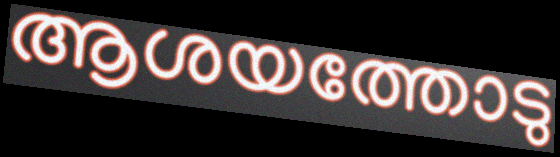
ആശയത്തോടു